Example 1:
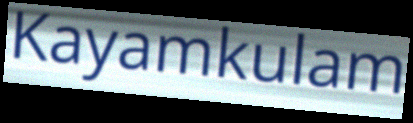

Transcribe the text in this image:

Kayamkulam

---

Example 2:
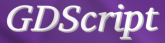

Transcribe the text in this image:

GDScript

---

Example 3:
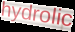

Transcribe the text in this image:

hydrolic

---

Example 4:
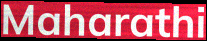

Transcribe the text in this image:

Maharathi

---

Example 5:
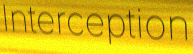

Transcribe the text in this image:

Interception